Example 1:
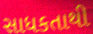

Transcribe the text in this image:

સાધકતાથી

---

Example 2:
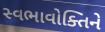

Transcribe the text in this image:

સ્વભાવોક્તિને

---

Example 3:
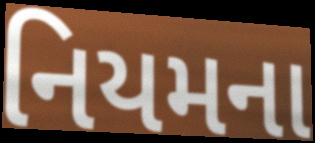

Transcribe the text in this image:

નિયમના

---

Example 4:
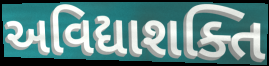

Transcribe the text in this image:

અવિદ્યાશક્તિ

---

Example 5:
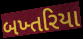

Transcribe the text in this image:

બખ્તરિયા